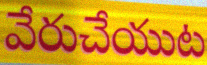
వేరుచేయుట